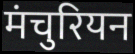
मंचुरियन